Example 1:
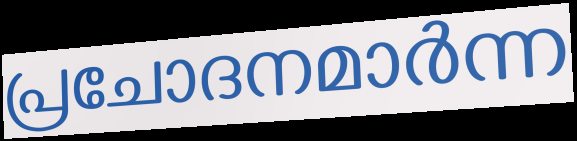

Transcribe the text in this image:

പ്രചോദനമാർന്ന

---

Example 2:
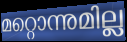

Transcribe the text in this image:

മറ്റൊന്നുമില്ല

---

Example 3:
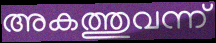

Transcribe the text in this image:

അകത്തുവന്ന്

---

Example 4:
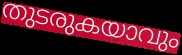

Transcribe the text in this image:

തുടരുകയാവും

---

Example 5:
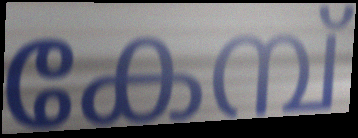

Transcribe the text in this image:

കേമ്പ്